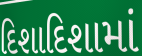
દિશાદિશામાં